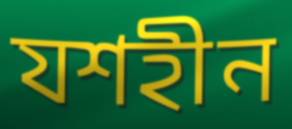
যশহীন